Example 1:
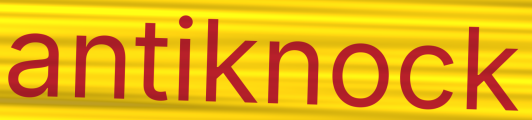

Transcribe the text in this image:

antiknock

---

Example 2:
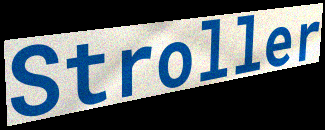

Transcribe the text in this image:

Stroller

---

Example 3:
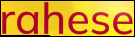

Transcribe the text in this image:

rahese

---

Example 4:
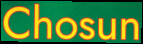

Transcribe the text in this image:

Chosun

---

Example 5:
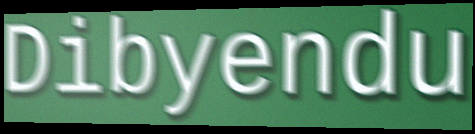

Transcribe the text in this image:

Dibyendu